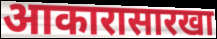
आकारासारखा